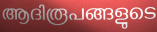
ആദിരൂപങ്ങളുടെ